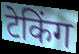
टेकिंग